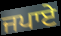
ਜਪਾਏ